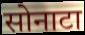
सोनाटा